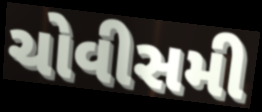
ચોવીસમી